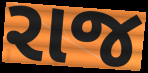
રાજ